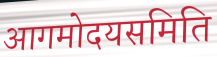
आगमोदयसमिति